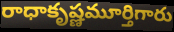
రాధాకృష్ణమూర్తిగారు